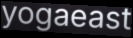
yogaeast